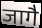
जागै